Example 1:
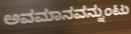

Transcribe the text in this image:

ಅವಮಾನವನ್ನುಂಟು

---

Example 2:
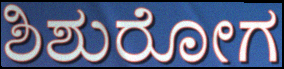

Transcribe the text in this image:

ಶಿಶುರೋಗ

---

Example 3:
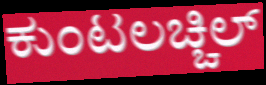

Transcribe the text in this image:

ಕುಂಟಲಚ್ಚಿಲ್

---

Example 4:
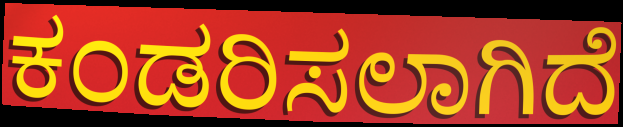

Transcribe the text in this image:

ಕಂಡರಿಸಲಾಗಿದೆ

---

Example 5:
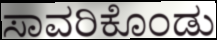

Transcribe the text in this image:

ಸಾವರಿಕೊಂಡು